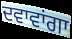
ਦਵਾਵਾਂਗਾ